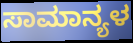
ಸಾಮಾನ್ಯಳ